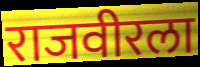
राजवीरला